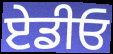
ਏਡੀਓ